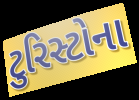
ટુરિસ્ટોના